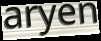
aryen